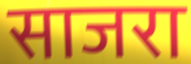
साजरा